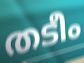
തടീം